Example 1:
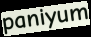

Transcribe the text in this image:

paniyum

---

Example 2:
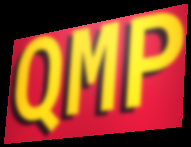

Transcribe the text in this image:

QMP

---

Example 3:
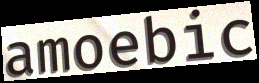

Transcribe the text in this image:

amoebic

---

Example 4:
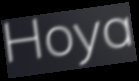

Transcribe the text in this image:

Hoya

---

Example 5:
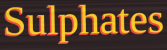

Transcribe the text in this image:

Sulphates